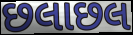
છલાછલ